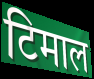
टिमाल